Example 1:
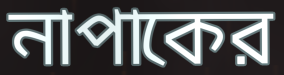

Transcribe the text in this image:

নাপাকের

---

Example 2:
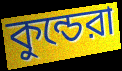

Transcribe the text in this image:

কুন্ডেরা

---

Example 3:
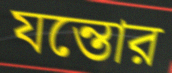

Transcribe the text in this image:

যন্তোর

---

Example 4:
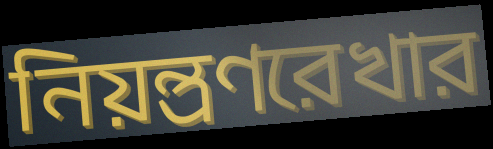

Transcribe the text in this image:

নিয়ন্ত্রণরেখার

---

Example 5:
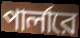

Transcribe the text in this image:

পার্লারে